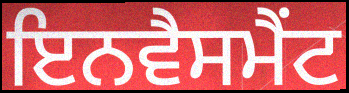
ਇਨਵੈਸਮੈਂਟ